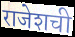
राजेशची